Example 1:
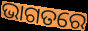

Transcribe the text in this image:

ଭାଗତରେ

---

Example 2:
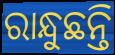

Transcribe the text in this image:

ରାନ୍ଧୁଛନ୍ତି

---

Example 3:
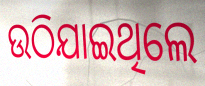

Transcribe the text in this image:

ଉଠିଯାଇଥିଲେ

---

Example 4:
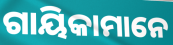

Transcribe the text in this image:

ଗାୟିକାମାନେ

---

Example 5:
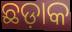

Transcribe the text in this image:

ଛଡ଼ାକ